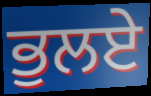
ਭੁਲਏ